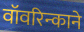
वॉवरिन्काने